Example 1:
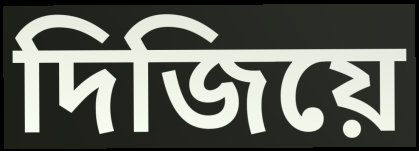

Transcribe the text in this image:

দিজিয়ে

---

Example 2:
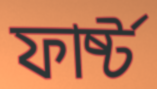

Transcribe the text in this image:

ফার্ষ্ট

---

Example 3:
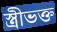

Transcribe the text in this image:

স্ত্রীভক্ত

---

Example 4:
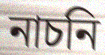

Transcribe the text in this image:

নাচনি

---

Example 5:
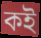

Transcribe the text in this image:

কই